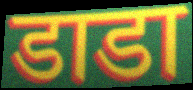
डाडा